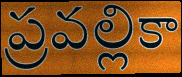
ప్రవల్లికా